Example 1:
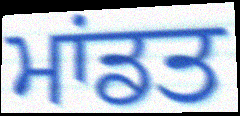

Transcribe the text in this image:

ਮਾਂਡਤ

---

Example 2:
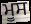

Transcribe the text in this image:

ਮੂਸ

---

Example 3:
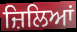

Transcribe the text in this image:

ਜ਼ਿਲਿਆਂ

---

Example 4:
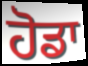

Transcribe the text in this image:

ਹੋਡਾ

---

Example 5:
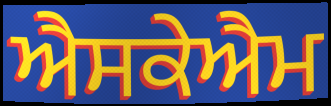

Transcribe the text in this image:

ਐਸਕੇਐਮ